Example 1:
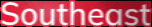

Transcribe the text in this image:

Southeast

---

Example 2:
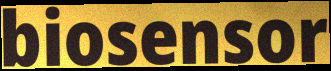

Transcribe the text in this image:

biosensor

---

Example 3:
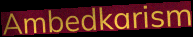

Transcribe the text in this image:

Ambedkarism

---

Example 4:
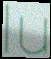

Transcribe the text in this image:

lu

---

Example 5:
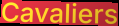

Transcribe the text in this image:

Cavaliers